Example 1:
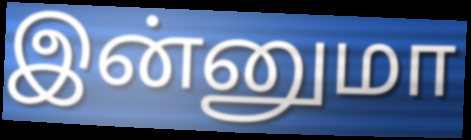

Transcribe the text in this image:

இன்னுமா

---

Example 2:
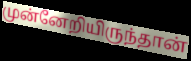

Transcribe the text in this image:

முன்னேறியிருந்தான்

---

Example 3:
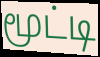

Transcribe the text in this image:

மூட்டி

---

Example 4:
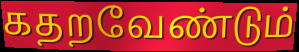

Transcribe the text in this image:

கதறவேண்டும்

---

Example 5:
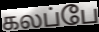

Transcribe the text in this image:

கலப்பே